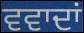
ਵਵਾਦਾਂ